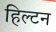
हिल्टन